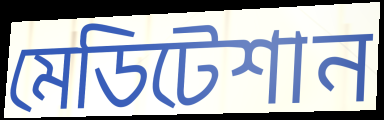
মেডিটেশান